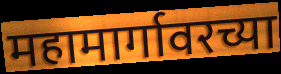
महामार्गावरच्या